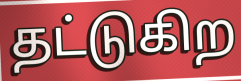
தட்டுகிற